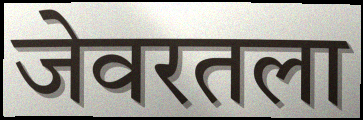
जेवरतला